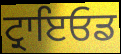
ਟ੍ਰਾਇਓਡ